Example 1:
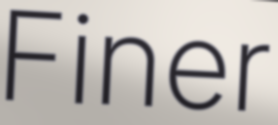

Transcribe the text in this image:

Finer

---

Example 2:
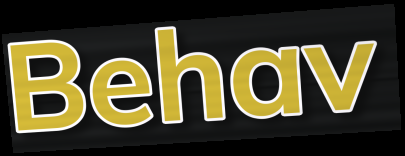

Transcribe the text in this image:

Behav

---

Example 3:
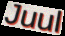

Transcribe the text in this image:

Juul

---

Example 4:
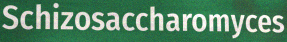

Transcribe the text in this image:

Schizosaccharomyces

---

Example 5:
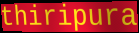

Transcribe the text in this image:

thiripura